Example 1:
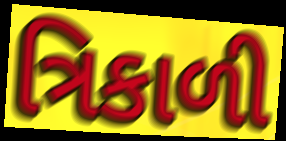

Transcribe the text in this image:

ત્રિકાળી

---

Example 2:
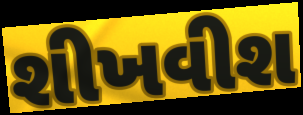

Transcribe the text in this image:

શીખવીશ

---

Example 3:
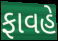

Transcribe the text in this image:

ફાવહે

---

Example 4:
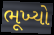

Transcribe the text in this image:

ભૂખ્યો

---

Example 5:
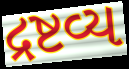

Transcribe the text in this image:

દ્રષ્ટવ્ય